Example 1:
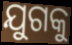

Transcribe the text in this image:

ଯୁଗକୁ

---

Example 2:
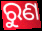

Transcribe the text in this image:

ରୁଣ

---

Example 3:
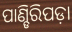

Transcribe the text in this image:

ପାଣ୍ଡିରିପଡ଼ା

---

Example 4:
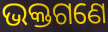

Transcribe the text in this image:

ଭକ୍ତଗଣେ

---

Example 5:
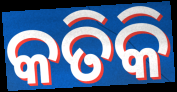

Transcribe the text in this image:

କତିକି